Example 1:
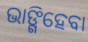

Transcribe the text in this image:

ଭାଙ୍ଗିହେବା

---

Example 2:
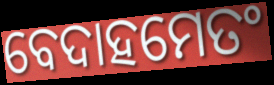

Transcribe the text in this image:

ବେଦାହମେତଂ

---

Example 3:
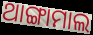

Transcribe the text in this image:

ଥାଙ୍ଗାମାଲ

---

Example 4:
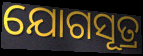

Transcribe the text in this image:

ଯୋଗସୂତ୍ର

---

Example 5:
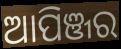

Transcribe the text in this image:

ଆପିଞ୍ଜର